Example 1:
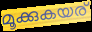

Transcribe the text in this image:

മൂക്കുകയര്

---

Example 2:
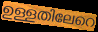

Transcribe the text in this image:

ഉള്ളതിലേറെ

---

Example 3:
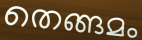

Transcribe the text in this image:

തെങ്ങമം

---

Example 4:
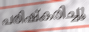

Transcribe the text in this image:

പരിഷ്കരിച്ചൂ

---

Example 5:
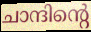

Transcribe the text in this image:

ചാന്ദിന്റെ